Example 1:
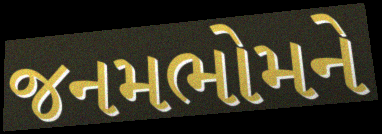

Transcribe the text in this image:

જનમભોમને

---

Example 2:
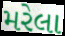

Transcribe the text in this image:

મરેલા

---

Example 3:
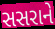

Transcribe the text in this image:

સસરાને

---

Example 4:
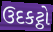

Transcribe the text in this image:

ઉદકટ્ઠો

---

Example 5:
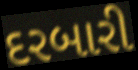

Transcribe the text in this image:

દરબારી